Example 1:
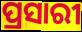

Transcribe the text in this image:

ପ୍ରସାରୀ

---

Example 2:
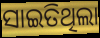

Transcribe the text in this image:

ସାଇତିଥିଲା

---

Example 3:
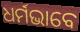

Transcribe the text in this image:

ଧର୍ମଭାବେ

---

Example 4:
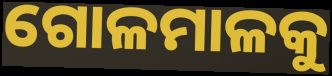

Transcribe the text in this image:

ଗୋଳମାଳକୁ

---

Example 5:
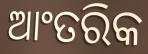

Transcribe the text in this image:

ଆଂତରିକ